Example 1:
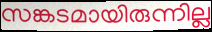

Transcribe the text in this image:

സങ്കടമായിരുന്നില്ല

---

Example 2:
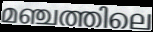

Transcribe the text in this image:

മഞ്ചത്തിലെ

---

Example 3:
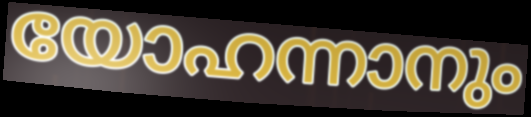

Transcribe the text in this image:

യോഹന്നാനും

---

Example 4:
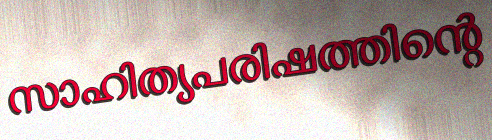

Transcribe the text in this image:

സാഹിത്യപരിഷത്തിന്റെ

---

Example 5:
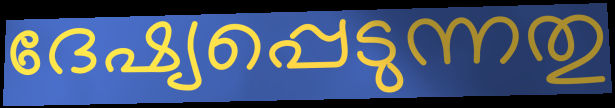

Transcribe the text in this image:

ദേഷ്യപ്പെടുന്നതു